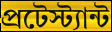
প্রটেস্ট্যান্ট